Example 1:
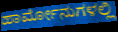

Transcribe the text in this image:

ಹಾರ್ಮೋನುಗಳಲ್ಲಿ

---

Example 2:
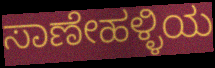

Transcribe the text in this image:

ಸಾಣೇಹಳ್ಳಿಯ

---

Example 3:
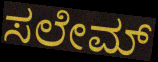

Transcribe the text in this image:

ಸಲೇಮ್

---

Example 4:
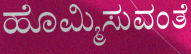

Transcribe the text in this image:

ಹೊಮ್ಮಿಸುವಂತೆ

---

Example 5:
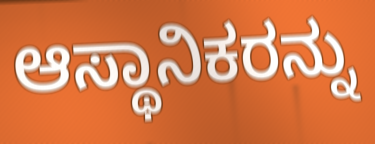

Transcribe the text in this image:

ಆಸ್ಥಾನಿಕರನ್ನು